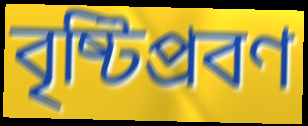
বৃষ্টিপ্রবণ